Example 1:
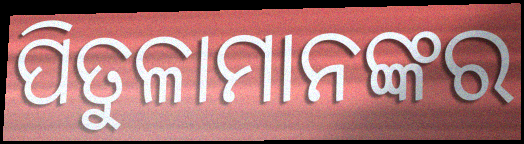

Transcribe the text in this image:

ପିତୁଳାମାନଙ୍କର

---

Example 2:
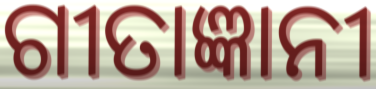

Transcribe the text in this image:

ଗୀତାଜ୍ଞାନୀ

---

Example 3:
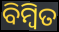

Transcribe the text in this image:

ବିମ୍ବିତ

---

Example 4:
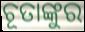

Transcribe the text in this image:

ଚୂତାଙ୍କୁର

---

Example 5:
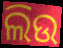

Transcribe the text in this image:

ଲିଉ